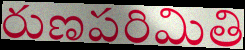
రుణపరిమితి